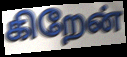
கிறேன்